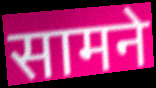
सामने